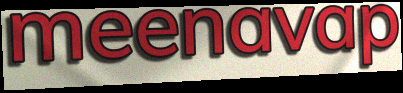
meenavap